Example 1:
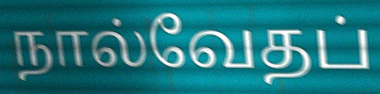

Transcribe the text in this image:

நால்வேதப்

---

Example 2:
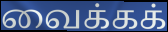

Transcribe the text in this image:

வைக்கக்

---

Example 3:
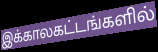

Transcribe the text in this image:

இக்காலகட்டங்களில்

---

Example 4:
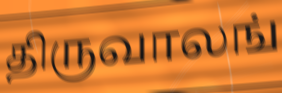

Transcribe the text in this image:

திருவாலங்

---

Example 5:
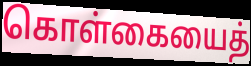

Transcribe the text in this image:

கொள்கையைத்